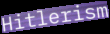
Hitlerism